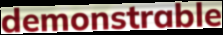
demonstrable